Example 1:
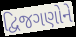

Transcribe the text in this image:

દ્વિજગણોને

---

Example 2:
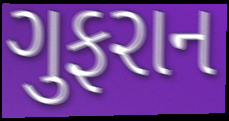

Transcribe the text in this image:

ગુફરાન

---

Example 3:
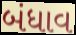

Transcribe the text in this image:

બંધાવ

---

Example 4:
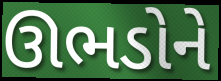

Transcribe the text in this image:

ઊભડોને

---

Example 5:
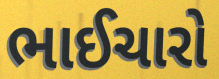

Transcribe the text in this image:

ભાઈચારો